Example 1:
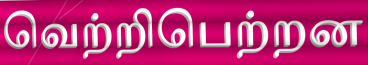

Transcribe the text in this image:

வெற்றிபெற்றன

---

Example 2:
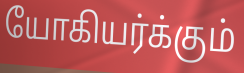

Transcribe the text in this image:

யோகியர்க்கும்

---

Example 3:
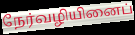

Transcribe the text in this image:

நேர்வழியினைப்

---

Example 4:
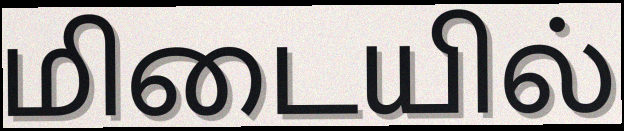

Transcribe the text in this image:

மிடையில்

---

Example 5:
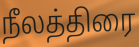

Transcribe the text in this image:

நீலத்திரை